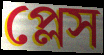
প্লেস